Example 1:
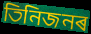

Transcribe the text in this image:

তিনিজনৰ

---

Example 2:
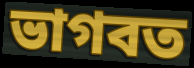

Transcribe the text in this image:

ভাগবত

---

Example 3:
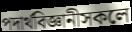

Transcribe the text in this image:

পদাৰ্থবিজ্ঞানীসকলে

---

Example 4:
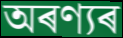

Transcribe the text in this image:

অৰণ্যৰ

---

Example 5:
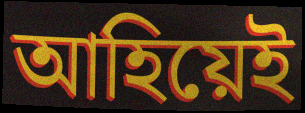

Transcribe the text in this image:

আহিয়েই